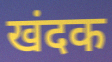
खंदक